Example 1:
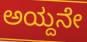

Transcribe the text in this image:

ಅಯ್ದನೇ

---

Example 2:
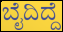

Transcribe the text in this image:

ಬೈದಿದ್ದೆ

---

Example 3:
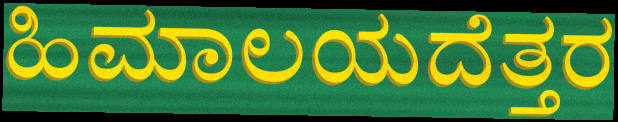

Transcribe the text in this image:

ಹಿಮಾಲಯದೆತ್ತರ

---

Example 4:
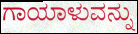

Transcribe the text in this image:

ಗಾಯಾಳುವನ್ನು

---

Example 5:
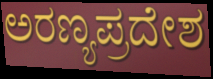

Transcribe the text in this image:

ಅರಣ್ಯಪ್ರದೇಶ